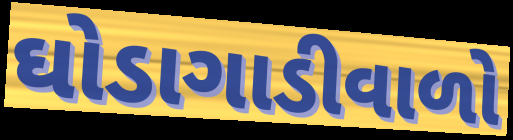
ઘોડાગાડીવાળો